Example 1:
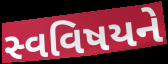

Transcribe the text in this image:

સ્વવિષયને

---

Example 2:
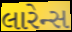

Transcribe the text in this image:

લારેન્સ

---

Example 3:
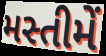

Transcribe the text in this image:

મસ્તીમેં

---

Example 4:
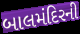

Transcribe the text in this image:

બાલમંદિરની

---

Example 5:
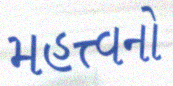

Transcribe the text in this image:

મહત્ત્વનો